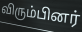
விரும்பினர்